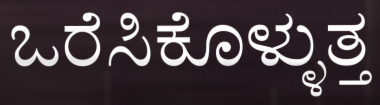
ಒರೆಸಿಕೊಳ್ಳುತ್ತ